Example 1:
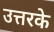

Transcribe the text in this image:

उत्तरके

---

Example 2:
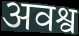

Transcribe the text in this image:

अवश्व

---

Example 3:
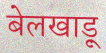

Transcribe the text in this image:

बेलखाड़ू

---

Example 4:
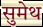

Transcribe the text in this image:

सुमेथ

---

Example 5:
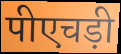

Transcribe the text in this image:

पीएचड़ी